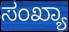
ಸಂಖ್ಯಾ